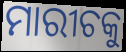
ମାରୀଚକୁ